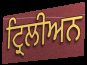
ਟ੍ਰਿਲੀਅਨ